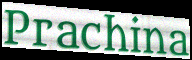
Prachina